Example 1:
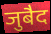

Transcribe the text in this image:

जुबैद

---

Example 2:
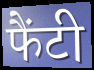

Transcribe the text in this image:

फैंटी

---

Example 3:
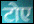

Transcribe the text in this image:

टोए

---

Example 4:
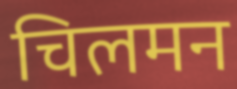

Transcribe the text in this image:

चिलमन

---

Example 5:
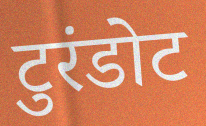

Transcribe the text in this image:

टुरंडोट